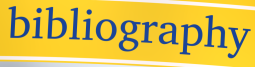
bibliography